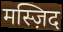
मस्ज़िद